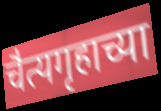
चैत्यगृहाच्या